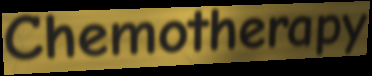
Chemotherapy